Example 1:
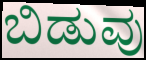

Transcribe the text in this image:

ಬಿಡುವು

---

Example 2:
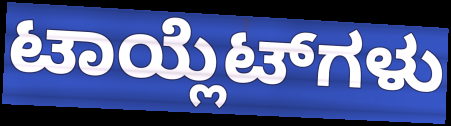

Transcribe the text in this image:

ಟಾಯ್ಲೆಟ್‌ಗಳು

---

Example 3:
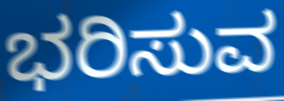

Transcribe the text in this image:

ಭರಿಸುವ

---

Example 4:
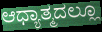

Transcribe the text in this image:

ಆಧ್ಯಾತ್ಮದಲ್ಲೂ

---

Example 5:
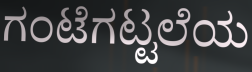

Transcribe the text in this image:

ಗಂಟೆಗಟ್ಟಲೆಯ